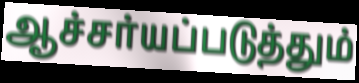
ஆச்சர்யப்படுத்தும்